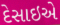
દેસાઇએ